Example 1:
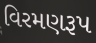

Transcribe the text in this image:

વિરમણરૂપ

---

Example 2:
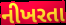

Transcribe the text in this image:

નીખરતા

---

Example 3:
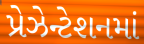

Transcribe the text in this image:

પ્રેઝેન્ટેશનમાં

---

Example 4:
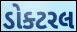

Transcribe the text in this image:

ડોક્ટરલ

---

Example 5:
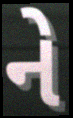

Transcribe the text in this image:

ને